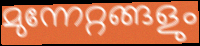
മുന്നേറ്റങ്ങളും